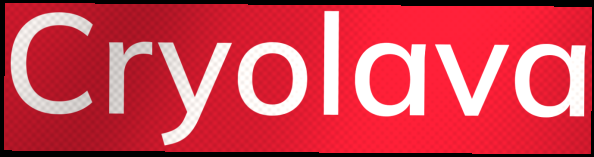
Cryolava